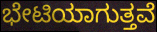
ಭೇಟಿಯಾಗುತ್ತವೆ